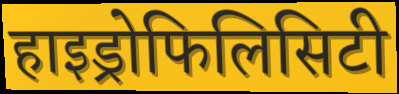
हाइड्रोफिलिसिटी